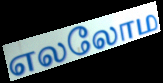
எலலோம